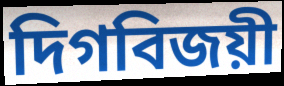
দিগবিজয়ী